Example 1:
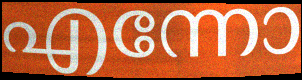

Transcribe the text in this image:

എന്നോ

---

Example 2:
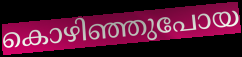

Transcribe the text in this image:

കൊഴിഞ്ഞുപോയ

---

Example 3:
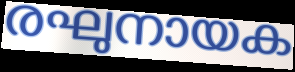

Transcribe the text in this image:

രഘുനായക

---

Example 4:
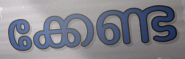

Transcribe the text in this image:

ക്കേണ്ട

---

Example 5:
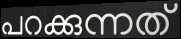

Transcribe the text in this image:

പറക്കുന്നത്